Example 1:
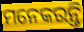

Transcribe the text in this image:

ମନେକରନ୍ତି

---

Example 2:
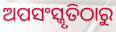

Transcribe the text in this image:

ଅପସଂସ୍କୃତିଠାରୁ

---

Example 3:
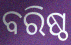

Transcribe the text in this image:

ବରିଷ୍ଠ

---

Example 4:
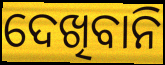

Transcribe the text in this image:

ଦେଖିବାନି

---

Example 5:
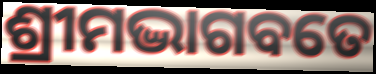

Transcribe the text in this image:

ଶ୍ରୀମଦ୍ଭାଗବତେ